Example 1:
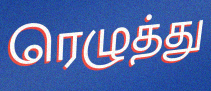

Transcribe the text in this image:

ரெழுத்து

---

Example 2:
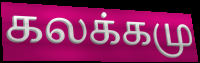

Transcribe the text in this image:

கலக்கமு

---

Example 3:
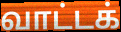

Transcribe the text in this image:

வாட்டக்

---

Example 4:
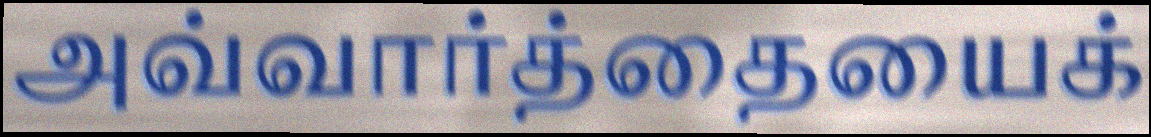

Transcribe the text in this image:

அவ்வார்த்தையைக்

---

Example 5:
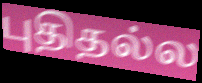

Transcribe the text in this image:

புதிதல்ல